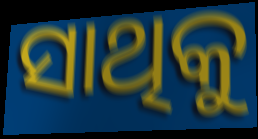
ସାଥିକୁ